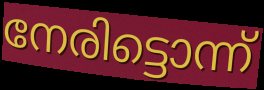
നേരിട്ടൊന്ന്